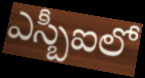
ఎస్బీఐలో